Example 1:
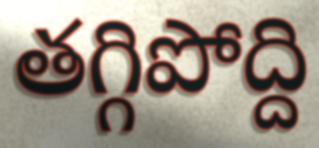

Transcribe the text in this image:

తగ్గిపోద్ది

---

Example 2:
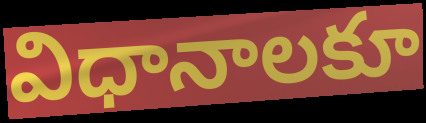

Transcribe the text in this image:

విధానాలకూ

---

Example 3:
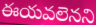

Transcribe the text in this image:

ఈయవలెనని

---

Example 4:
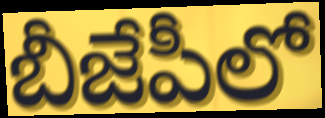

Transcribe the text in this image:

బీజేపీలో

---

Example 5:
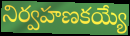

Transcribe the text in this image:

నిర్వహణకయ్యే